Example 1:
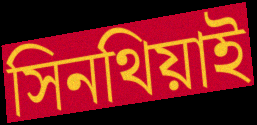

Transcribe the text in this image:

সিনথিয়াই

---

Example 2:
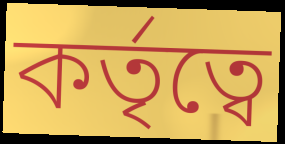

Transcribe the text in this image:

কর্তৃত্বে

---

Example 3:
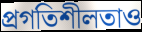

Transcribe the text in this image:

প্রগতিশীলতাও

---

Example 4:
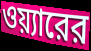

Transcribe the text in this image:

ওয়্যারের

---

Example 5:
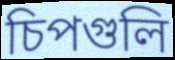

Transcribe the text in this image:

চিপগুলি